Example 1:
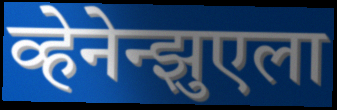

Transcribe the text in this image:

व्हेनेन्झुएला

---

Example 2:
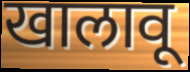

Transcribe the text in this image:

खालावू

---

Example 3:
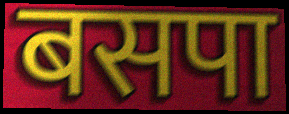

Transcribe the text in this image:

बसपा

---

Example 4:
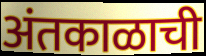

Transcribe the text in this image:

अंतकाळाची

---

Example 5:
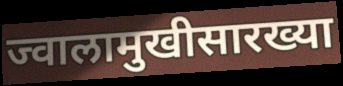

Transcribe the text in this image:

ज्वालामुखीसारख्या